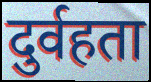
दुर्वहता